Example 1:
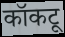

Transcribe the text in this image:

कॉकटू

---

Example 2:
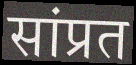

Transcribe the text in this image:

सांप्रत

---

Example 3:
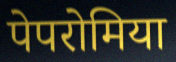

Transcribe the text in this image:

पेपरोमिया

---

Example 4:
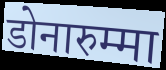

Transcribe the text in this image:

डोनारुम्मा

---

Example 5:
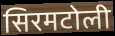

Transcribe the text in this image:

सिरमटोली